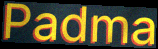
Padma